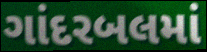
ગાંદરબલમાં